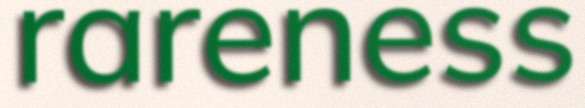
rareness